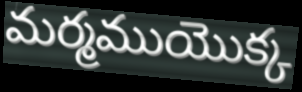
మర్మముయొక్క